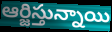
ఆర్జిస్తున్నాయి